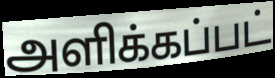
அளிக்கப்பட்